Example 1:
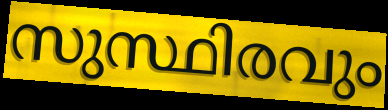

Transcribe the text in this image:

സുസ്ഥിരവും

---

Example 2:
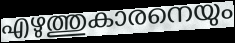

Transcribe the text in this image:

എഴുത്തുകാരനെയും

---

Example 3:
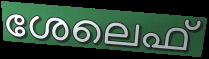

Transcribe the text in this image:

ശേലെഫ്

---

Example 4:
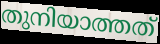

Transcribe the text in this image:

തുനിയാത്തത്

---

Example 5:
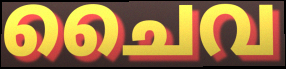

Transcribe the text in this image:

ചൈവ